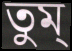
তুম্